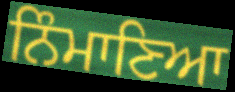
ਨਿੰਮਾਣਿਆ